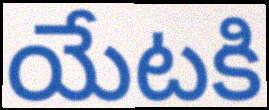
యేటకి